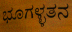
ಭೂಗಳ್ಳತನ